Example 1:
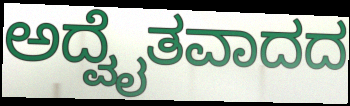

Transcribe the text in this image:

ಅದ್ವೈತವಾದದ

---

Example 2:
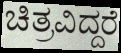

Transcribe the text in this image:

ಚಿತ್ರವಿದ್ದರೆ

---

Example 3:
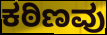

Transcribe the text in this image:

ಕಠಿಣವು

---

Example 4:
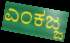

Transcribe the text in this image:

ಎಂಕಜ್ಜ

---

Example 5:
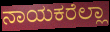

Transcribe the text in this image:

ನಾಯಕರೆಲ್ಲಾ